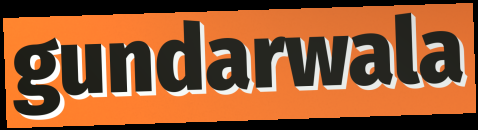
gundarwala